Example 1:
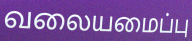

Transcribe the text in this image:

வலையமைப்பு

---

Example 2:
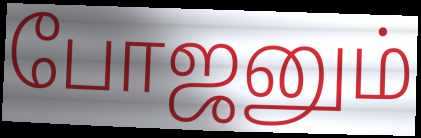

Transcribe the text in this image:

போஜனும்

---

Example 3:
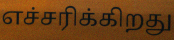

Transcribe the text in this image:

எச்சரிக்கிறது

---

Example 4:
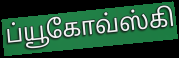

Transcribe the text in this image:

ப்யூகோவ்ஸ்கி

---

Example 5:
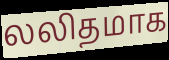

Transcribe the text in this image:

லலிதமாக